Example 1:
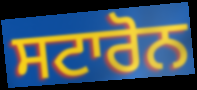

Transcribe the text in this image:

ਸਟਾਰੋਨ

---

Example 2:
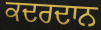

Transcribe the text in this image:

ਕਦਰਦਾਨ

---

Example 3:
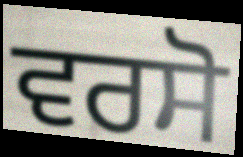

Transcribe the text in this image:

ਵਰਸੋ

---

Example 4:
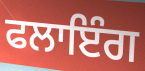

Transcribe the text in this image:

ਫਲਾਇੰਗ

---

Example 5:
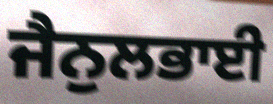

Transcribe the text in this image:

ਜੈਨੁਲਭਾਈ